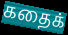
கதைக்